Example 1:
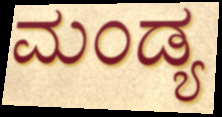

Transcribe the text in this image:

ಮಂಡ್ಯ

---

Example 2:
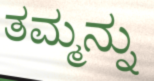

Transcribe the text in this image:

ತಮ್ಮನ್ನು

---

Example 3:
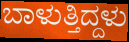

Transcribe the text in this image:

ಬಾಳುತ್ತಿದ್ದಳು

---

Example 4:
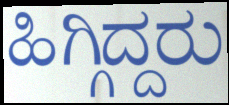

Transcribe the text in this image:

ಹಿಗ್ಗಿದ್ದರು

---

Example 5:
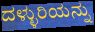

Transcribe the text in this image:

ದಳ್ಳುರಿಯನ್ನು